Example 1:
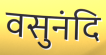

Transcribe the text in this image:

वसुनंदि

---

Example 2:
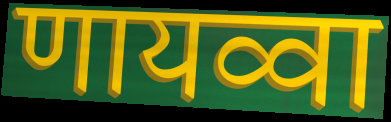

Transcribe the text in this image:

णायव्वा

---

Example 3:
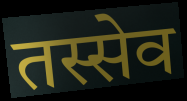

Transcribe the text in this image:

तस्सेव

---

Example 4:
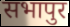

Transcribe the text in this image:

सभापुर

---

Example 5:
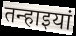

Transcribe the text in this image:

तन्हाइयां